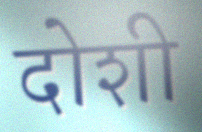
दोशी